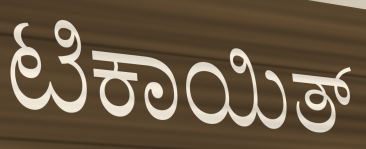
ಟಿಕಾಯಿತ್